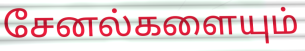
சேனல்களையும்